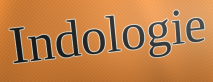
Indologie